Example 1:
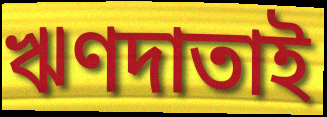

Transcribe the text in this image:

ঋণদাতাই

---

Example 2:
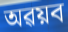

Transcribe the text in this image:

অৱয়ব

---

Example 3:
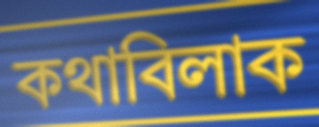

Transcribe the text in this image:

কথাবিলাক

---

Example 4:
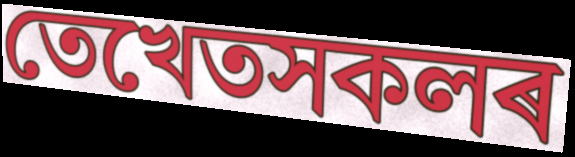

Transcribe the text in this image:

তেখেতসকলৰ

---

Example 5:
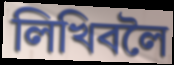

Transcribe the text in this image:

লিখিবলৈ